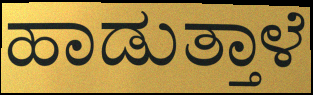
ಹಾಡುತ್ತಾಳೆ